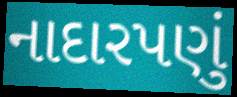
નાદારપણું